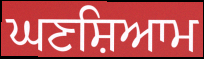
ਘਣਸ਼ਿਆਮ